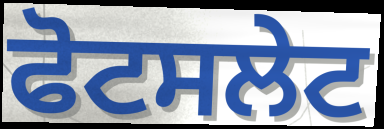
ਫੋਟਸਲੇਟ